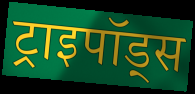
ट्राइपॉड्स